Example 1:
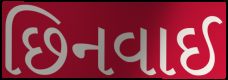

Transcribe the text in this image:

છિનવાઈ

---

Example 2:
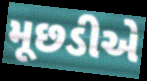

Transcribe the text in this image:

મૂછડીએ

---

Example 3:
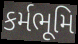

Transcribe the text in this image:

કર્મભૂમિ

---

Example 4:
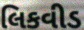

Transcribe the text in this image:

લિકવીડ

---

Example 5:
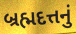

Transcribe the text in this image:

બ્રહ્મદત્તનું